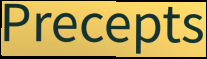
Precepts